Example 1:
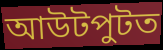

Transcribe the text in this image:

আউটপুটত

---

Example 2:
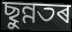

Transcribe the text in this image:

ছুন্নতৰ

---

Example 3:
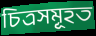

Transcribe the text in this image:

চিত্ৰসমূহত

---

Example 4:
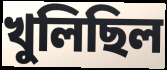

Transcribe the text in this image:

খুলিছিল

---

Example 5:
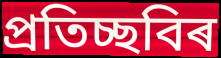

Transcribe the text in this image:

প্ৰতিচ্ছবিৰ